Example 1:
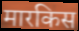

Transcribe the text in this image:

मारकिस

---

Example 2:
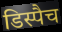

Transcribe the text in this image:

डिस्‍पैच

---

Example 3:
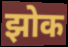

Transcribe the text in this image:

झोक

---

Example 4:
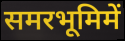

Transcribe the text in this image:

समरभूमिमें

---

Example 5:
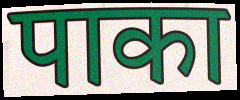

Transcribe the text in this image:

पाका